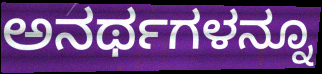
ಅನರ್ಥಗಳನ್ನೂ